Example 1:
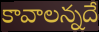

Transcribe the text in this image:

కావాలన్నదే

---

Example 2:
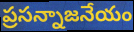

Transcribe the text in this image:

ప్రసన్నాజనేయం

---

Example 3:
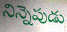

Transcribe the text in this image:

నిన్నెపుడు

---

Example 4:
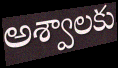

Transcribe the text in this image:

అశ్వాలకు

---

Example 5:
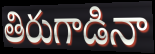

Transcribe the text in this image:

తిరుగాడినా